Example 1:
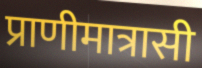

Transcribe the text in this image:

प्राणीमात्रासी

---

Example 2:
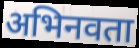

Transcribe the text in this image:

अभिनवता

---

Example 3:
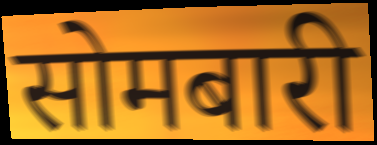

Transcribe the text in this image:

सोमबारी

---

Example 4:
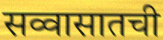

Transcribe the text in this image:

सव्वासातची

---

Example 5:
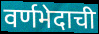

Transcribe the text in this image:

वर्णभेदाची